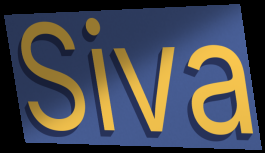
Siva